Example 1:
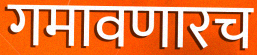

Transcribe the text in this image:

गमावणारच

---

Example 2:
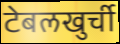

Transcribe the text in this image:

टेबलखुर्ची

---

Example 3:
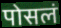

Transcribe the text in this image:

पोसलं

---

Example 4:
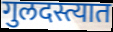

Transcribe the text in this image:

गुलदस्त्यात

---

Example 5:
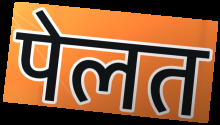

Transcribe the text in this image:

पेलत